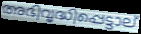
അഭിവൃദ്ധിപ്പെട്ടാല്